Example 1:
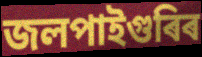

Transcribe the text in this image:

জলপাইগুৰিৰ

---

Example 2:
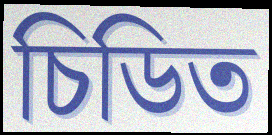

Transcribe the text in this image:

চিডিত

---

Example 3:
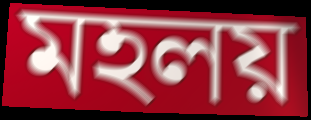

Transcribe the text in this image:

মহলয়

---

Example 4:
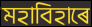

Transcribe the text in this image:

মহাবিহাৰে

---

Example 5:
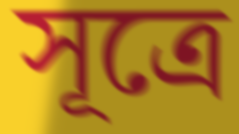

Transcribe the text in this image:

সূত্ৰে